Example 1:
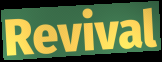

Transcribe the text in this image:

Revival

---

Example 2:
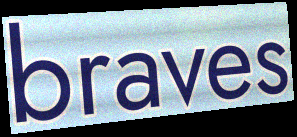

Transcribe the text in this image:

braves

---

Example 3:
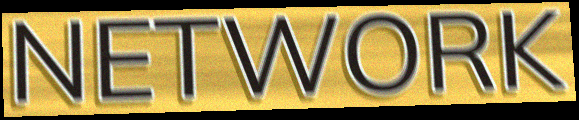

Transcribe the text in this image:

NETWORK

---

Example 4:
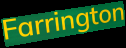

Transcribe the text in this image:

Farrington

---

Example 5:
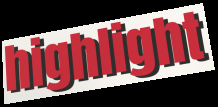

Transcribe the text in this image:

highlight